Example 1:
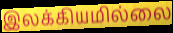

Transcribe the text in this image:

இலக்கியமில்லை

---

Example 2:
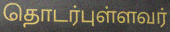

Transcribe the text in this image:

தொடர்புள்ளவர்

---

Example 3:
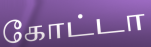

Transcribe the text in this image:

கோட்டா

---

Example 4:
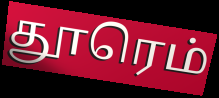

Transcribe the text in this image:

தூரெம்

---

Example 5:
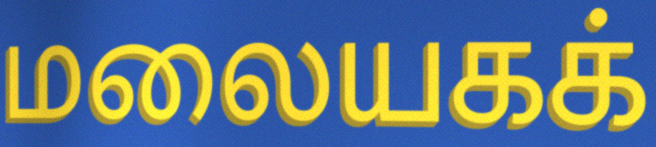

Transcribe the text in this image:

மலையகக்